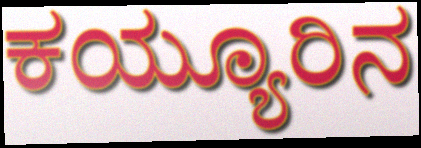
ಕಯ್ಯೂರಿನ